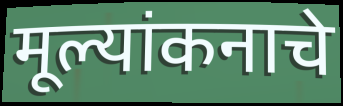
मूल्यांकनाचे